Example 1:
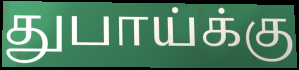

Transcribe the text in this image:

துபாய்க்கு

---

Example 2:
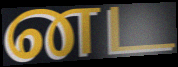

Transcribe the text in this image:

னட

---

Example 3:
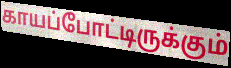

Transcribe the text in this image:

காயப்போட்டிருக்கும்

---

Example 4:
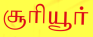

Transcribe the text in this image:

சூரியூர்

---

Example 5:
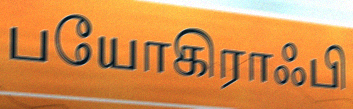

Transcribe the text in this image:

பயோகிராஃபி